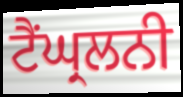
ਟੈਂਘ੍ਰਲਨੀ